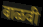
वाळवी